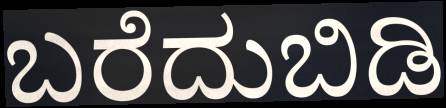
ಬರೆದುಬಿಡಿ